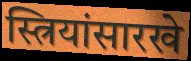
स्त्रियांसारखे